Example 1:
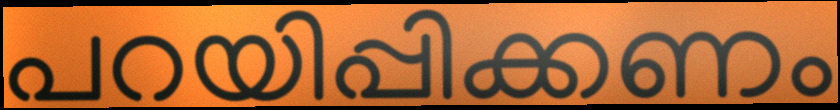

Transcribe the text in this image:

പറയിപ്പിക്കണം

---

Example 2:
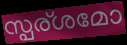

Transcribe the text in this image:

സ്പര്ശമോ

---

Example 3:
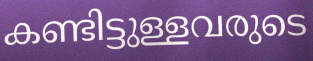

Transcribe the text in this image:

കണ്ടിട്ടുള്ളവരുടെ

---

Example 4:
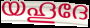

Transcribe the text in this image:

യഹൂദേ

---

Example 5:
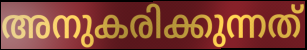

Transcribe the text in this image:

അനുകരിക്കുന്നത്